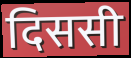
दिससी